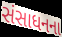
સંસાધનના